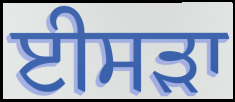
ਈਸੜਾ